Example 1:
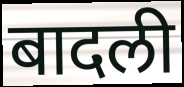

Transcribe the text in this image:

बादली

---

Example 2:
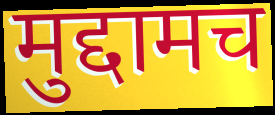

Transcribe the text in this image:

मुद्दामच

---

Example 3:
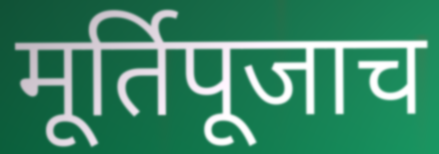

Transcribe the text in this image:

मूर्तिपूजाच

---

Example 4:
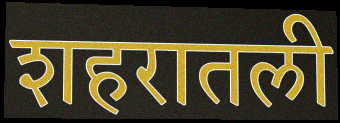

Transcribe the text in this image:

शहरातली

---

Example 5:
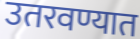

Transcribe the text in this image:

उतरवण्यात